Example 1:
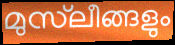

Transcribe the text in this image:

മുസ്‌ലീങ്ങളും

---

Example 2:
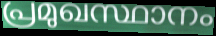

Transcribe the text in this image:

പ്രമുഖസ്ഥാനം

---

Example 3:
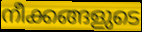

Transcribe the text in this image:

നീക്കങ്ങളുടെ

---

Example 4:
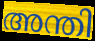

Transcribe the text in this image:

അന്തി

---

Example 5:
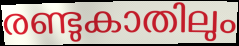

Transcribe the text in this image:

രണ്ടുകാതിലും